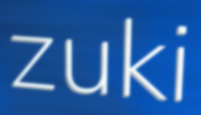
zuki